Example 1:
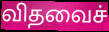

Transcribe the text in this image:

விதவைச்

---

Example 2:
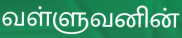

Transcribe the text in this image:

வள்ளுவனின்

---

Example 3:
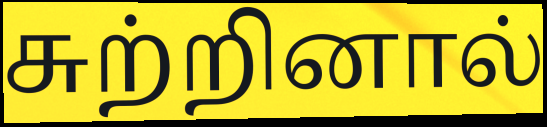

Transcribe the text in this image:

சுற்றினால்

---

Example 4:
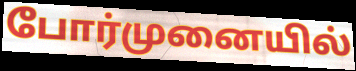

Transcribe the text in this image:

போர்முனையில்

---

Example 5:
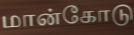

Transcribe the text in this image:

மான்கோடு